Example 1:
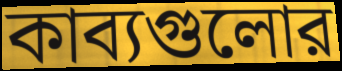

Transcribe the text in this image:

কাব্যগুলোর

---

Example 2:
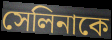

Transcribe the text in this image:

সেলিনাকে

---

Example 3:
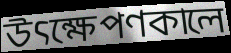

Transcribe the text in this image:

উৎক্ষেপণকালে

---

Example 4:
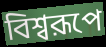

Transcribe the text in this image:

বিশ্বরূপে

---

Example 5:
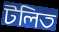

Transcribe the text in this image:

টলিত